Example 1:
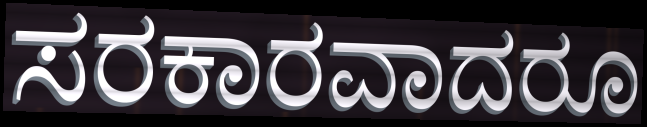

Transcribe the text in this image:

ಸರಕಾರವಾದರೂ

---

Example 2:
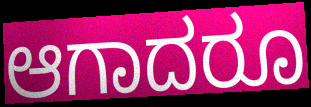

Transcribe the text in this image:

ಆಗಾದರೂ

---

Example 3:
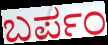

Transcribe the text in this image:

ಬರ್ಪಂ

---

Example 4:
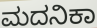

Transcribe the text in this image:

ಮದನಿಕಾ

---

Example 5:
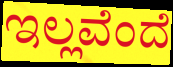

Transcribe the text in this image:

ಇಲ್ಲವೆಂದೆ